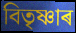
বিতৃষ্ণাৰ